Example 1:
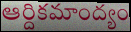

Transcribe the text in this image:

ఆర్దికమాంద్యం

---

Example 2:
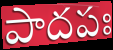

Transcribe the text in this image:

పాదపః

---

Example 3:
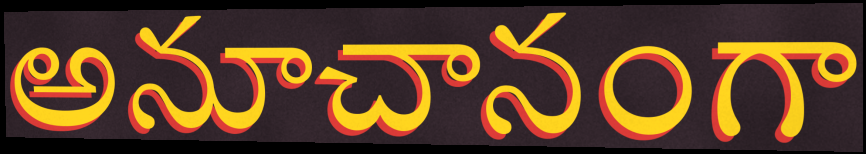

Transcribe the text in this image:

అనూచానంగా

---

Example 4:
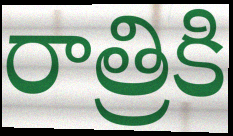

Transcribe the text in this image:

రాత్రికి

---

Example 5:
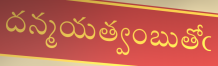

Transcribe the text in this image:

దన్మయత్వంబుతోఁ